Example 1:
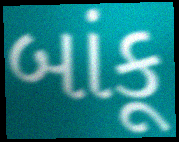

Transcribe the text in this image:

બાંકૂ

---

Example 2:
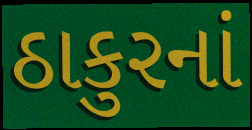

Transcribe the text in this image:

ઠાકુરનાં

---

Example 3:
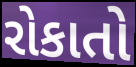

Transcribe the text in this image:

રોકાતો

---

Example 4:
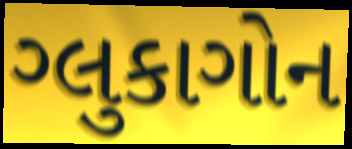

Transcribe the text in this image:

ગ્લુકાગોન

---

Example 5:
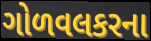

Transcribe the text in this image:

ગોળવલકરના